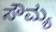
ಸೌಮ್ಯ